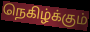
நெகிழ்க்கும்